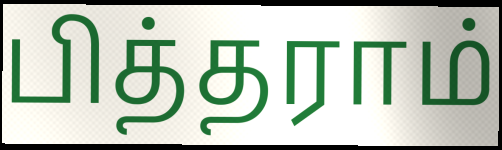
பித்தராம்